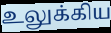
உலுக்கிய